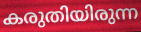
കരുതിയിരുന്ന